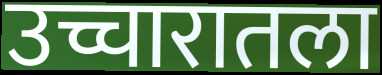
उच्चारातला